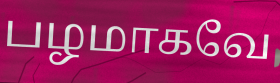
பழமாகவே